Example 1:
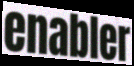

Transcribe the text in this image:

enabler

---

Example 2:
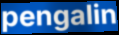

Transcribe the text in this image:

pengalin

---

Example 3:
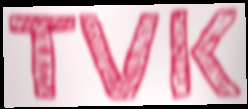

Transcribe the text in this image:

TVK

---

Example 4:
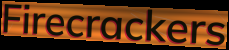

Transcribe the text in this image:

Firecrackers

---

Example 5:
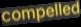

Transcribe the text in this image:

compelled